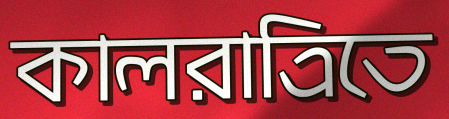
কালরাত্রিতে